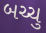
બચ્ચુ